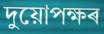
দুয়োপক্ষৰ